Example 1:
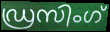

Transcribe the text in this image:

ഡ്രസിംഗ്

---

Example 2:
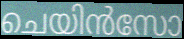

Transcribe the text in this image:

ചെയിൻസോ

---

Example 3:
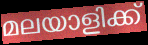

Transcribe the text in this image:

മലയാളിക്ക്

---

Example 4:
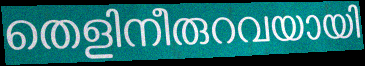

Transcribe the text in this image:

തെളിനീരുറവയായി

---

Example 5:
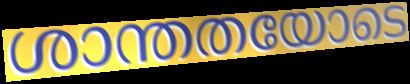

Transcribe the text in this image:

ശാന്തതയോടെ